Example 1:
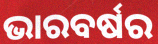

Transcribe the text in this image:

ଭାରବର୍ଷର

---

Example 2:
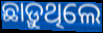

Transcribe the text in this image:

ଛାଡ଼ୁଥିଲେ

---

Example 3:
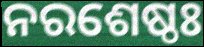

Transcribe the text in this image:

ନରଶେଷ୍ଠଃ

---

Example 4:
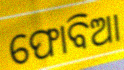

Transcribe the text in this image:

ଫୋବିଆ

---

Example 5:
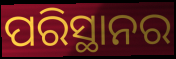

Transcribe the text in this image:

ପରିସ୍ଥାନର